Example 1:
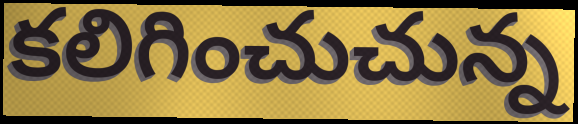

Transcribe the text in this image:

కలిగించుచున్న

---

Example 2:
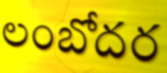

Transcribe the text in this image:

లంబోదర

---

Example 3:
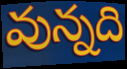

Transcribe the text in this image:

వున్నది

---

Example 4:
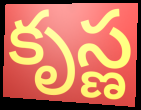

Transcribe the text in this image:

కృస్ణ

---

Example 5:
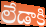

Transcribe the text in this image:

లేడాకి